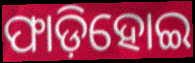
ଫାଡ଼ିହୋଇ